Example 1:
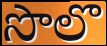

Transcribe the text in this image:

సొలొ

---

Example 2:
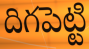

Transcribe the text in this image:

దిగపెట్టి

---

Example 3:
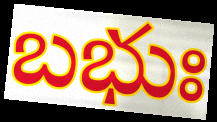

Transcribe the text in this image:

బభుః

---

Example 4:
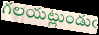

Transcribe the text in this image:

గలయట్లుండుఁ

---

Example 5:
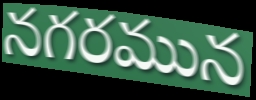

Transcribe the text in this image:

నగరమున